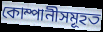
কোম্পানীসমূহত